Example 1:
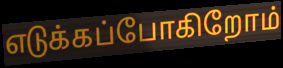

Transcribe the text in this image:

எடுக்கப்போகிறோம்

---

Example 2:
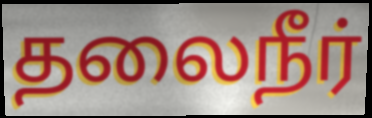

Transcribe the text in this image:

தலைநீர்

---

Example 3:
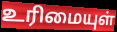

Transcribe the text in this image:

உரிமையுள்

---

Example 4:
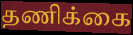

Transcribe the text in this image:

தணிக்கை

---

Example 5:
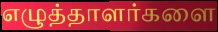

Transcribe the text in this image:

எழுத்தாளர்களை